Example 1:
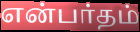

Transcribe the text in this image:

என்பர்தம்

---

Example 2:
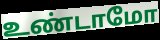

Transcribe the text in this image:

உண்டாமோ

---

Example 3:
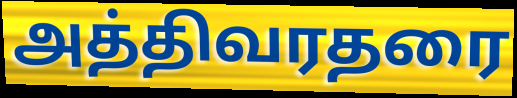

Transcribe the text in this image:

அத்திவரதரை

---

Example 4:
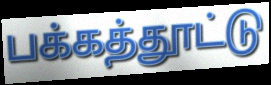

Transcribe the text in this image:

பக்கத்தூட்டு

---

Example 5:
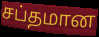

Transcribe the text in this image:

சப்தமான